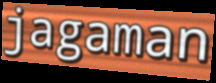
jagaman